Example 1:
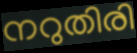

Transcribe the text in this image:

നറുതിരി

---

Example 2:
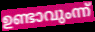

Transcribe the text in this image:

ഉണ്ടാവുംന്ന്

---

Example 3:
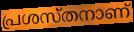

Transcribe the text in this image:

പ്രശസ്തനാണ്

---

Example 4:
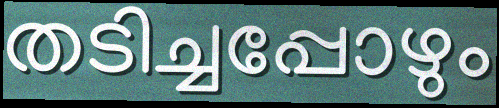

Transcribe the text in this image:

തടിച്ചപ്പോഴും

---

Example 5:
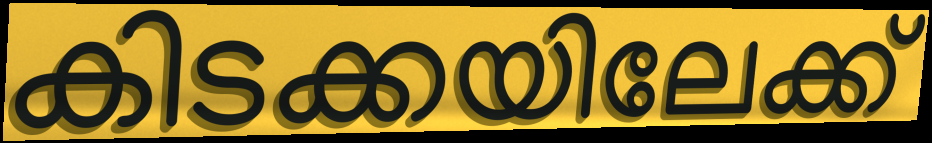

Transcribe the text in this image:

കിടക്കയിലേക്ക്